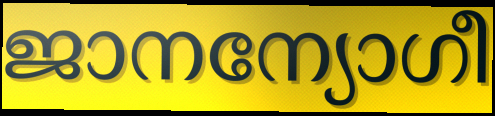
ജാനന്യോഗീ